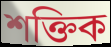
শক্তিক